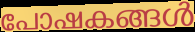
പോഷകങ്ങൾ